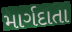
માર્ગદાતા